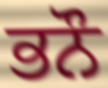
ਭਨੌ